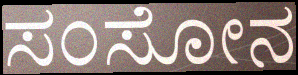
ಸಂಸೋನ